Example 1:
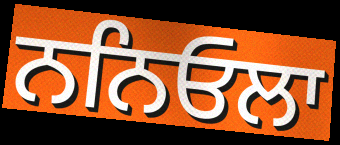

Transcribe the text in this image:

ਨਨਿਓਲਾ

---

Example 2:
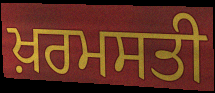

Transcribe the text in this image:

ਖ਼ਰਮਸਤੀ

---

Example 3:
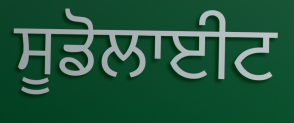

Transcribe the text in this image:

ਸੂਡੋਲਾਈਟ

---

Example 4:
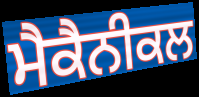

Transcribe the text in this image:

ਮੈਕੈਨੀਕਲ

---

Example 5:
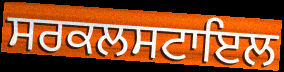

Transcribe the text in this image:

ਸਰਕਲਸਟਾਇਲ